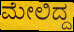
ಮೇಲಿದ್ದ